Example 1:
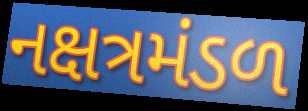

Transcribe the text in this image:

નક્ષત્રમંડળ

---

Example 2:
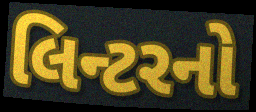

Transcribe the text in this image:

લિન્ટરનો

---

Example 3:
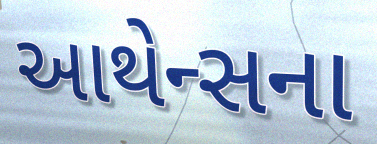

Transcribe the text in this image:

આથેન્સના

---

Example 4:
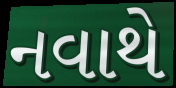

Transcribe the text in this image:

નવાથે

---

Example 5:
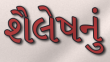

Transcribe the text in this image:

શૈલેષનું